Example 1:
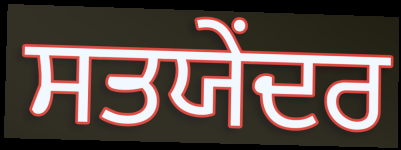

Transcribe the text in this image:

ਸਤਯੇਂਦਰ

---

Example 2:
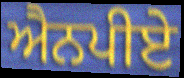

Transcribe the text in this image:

ਐਨਪੀਏ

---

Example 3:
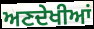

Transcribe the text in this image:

ਅਣਦੇਖੀਆਂ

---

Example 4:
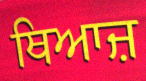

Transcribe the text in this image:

ਥਿਆਜ਼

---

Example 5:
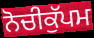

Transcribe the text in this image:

ਨੋਚੀਕੁੱਪਮ